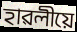
হাৱলীয়ে